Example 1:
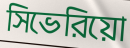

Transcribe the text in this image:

সিভেরিয়ো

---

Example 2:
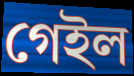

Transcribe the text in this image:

গেইল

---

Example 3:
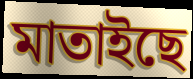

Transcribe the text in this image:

মাতাইছে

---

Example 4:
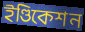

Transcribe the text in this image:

ইণ্ডিকেশন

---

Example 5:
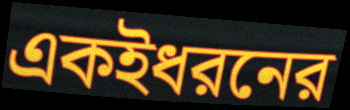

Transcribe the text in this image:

একইধরনের